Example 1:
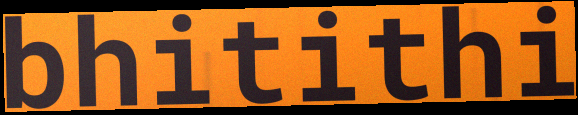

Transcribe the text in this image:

bhitithi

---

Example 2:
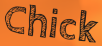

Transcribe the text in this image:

Chick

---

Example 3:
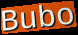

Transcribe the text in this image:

Bubo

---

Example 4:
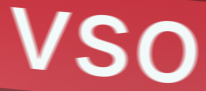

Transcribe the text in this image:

vso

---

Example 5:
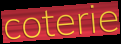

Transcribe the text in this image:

coterie